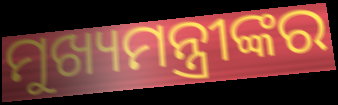
ମୁଖ୍ୟମନ୍ତ୍ରୀଙ୍କର